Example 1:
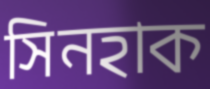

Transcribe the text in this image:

সিনহাক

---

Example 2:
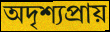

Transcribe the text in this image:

অদৃশ্যপ্ৰায়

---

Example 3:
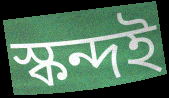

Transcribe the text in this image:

স্কন্দই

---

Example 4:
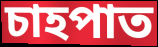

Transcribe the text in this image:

চাহপাত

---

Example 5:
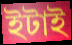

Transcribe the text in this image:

ইটাই